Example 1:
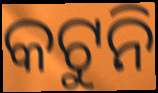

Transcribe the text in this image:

କଟୁନି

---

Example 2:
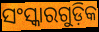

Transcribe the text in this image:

ସଂସ୍କାରଗୁଡ଼ିକ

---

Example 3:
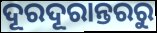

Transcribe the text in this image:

ଦୂରଦୂରାନ୍ତରରୁ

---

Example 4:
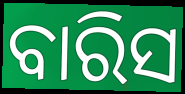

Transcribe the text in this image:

ବାରିସ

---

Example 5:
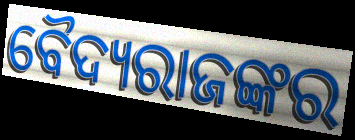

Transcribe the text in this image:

ବୈଦ୍ୟରାଜଙ୍କର